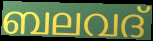
ബലവദ്